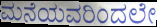
ಮನೆಯವರಿಂದಲೇ